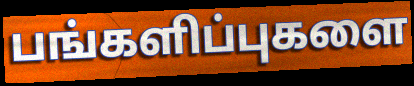
பங்களிப்புகளை